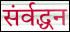
संर्वद्धन